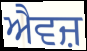
ਐਵਜ਼